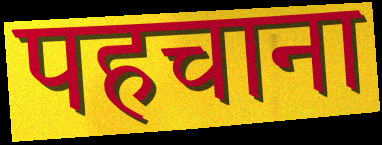
पहचाना